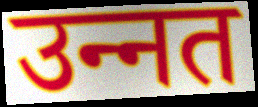
उन्‍नत